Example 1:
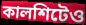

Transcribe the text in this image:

কালশিটেও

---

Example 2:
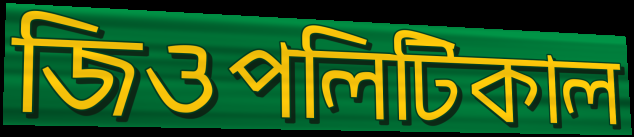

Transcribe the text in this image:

জিওপলিটিকাল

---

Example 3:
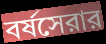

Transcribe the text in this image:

বর্ষসেরার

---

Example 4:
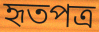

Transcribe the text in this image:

হৃতপত্র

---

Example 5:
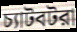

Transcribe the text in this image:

চ্যাটবটরা